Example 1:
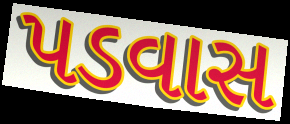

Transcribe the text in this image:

પડવાસ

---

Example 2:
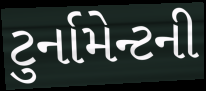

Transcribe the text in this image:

ટુર્નામેન્ટની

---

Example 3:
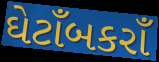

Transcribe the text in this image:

ઘેટાઁબકરાઁ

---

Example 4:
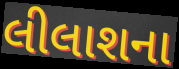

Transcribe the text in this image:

લીલાશના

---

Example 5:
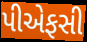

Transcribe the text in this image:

પીએફસી